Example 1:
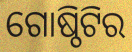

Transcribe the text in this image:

ଗୋଷ୍ଠିଟିର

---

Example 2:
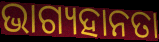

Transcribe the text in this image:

ଭାଗ୍ୟହାନତା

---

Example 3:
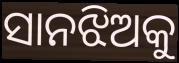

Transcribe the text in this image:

ସାନଝିଅକୁ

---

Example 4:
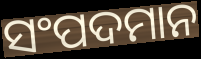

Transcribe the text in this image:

ସଂପଦମାନ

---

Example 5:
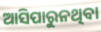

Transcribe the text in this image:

ଆସିପାରୁନଥିବା